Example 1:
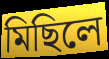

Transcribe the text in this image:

মিছিলে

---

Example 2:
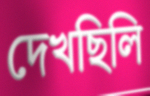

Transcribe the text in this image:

দেখছিলি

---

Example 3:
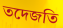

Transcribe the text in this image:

তদেজতি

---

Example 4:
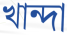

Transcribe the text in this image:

খান্দা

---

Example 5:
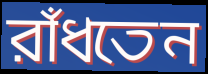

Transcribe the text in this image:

রাঁধতেন